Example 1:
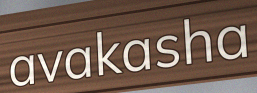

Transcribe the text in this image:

avakasha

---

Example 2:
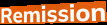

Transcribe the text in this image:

Remission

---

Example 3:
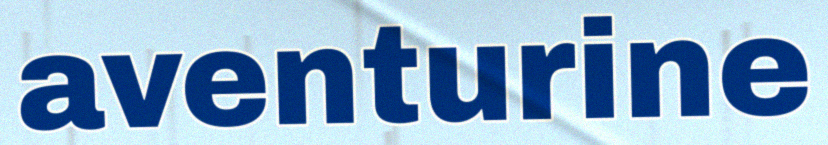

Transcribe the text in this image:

aventurine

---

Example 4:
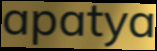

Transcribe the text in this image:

apatya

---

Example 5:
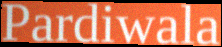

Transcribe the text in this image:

Pardiwala